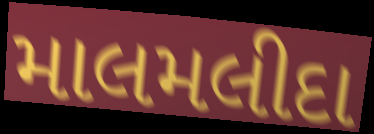
માલમલીદા